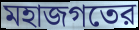
মহাজগতের